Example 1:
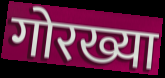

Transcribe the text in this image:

गोरख्या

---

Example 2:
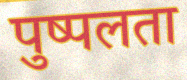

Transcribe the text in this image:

पुष्पलता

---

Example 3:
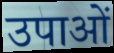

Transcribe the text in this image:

उपाओं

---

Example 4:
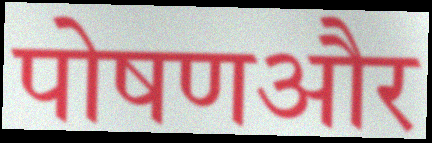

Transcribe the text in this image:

पोषणऔर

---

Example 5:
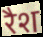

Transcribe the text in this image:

रैश